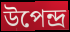
উপেন্দ্ৰ